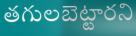
తగులబెట్టారని